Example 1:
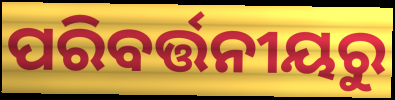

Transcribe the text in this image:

ପରିବର୍ତ୍ତନୀୟରୁ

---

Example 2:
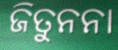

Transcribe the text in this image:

ଜିତୁନନା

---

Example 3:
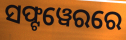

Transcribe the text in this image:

ସଫ୍ଟୱେରରେ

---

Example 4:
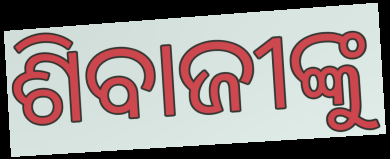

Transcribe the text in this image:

ଶିବାଜୀଙ୍କୁ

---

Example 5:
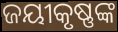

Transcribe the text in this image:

ଜୟୀକୃଷ୍ଣଙ୍କ